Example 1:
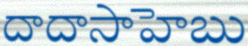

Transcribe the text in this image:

దాదాసాహెబు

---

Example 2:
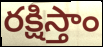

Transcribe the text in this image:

రక్షిస్తాం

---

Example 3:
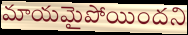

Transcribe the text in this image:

మాయమైపోయిందని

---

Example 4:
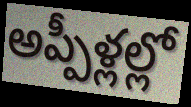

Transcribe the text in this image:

అప్పీళ్లల్లో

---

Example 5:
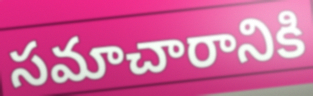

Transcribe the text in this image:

సమాచారానికి